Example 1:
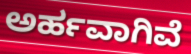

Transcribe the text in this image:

ಅರ್ಹವಾಗಿವೆ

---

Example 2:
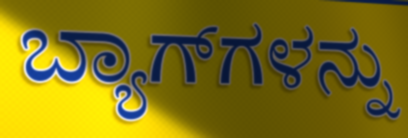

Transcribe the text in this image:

ಬ್ಯಾಗ್‍ಗಳನ್ನು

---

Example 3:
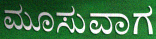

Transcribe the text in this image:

ಮೂಸುವಾಗ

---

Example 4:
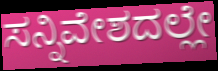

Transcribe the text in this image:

ಸನ್ನಿವೇಶದಲ್ಲೇ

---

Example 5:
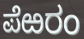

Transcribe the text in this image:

ಪೆಱರಂ